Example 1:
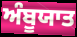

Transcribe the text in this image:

ਅੰਬੂਯਾਤ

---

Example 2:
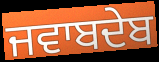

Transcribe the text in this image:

ਜਵਾਬਦੇਬ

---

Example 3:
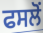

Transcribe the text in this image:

ਫਸਲੋਂ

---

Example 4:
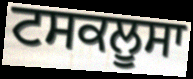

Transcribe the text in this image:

ਟਸਕਲੂਸਾ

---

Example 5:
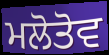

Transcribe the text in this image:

ਮਲੋਤੋਵ